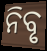
ନିବୃ